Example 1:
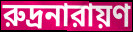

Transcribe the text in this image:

রুদ্রনারায়ণ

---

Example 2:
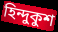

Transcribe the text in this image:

হিন্দুকুশ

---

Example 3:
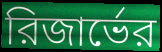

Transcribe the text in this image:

রিজার্ভের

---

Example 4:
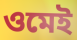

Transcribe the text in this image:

ওমেই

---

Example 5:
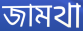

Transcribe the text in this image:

জামথা